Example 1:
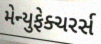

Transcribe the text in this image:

મેન્યુફેક્ચરર્સ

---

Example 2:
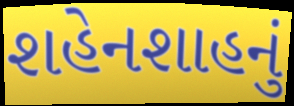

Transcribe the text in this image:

શહેનશાહનું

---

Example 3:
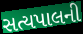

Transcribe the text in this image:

સત્યપાલની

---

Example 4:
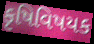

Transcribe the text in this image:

કૃષિવિષયક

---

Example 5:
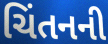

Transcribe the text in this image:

ચિંતનની